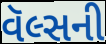
વૅલ્સની